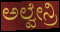
ಅಲ್ವೇನ್ರಿ